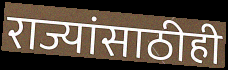
राज्यांसाठीही